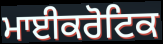
ਮਾਈਕਰੋਟਿਕ